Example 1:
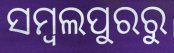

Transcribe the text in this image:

ସମ୍ବଲପୁରରୁ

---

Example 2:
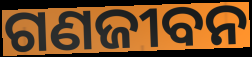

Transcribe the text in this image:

ଗଣଜୀବନ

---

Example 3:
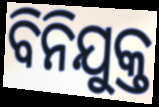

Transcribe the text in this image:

ବିନିଯୁକ୍ତ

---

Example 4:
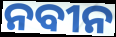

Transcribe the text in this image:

ନବୀନ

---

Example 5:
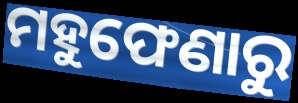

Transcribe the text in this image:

ମହୁଫେଣାରୁ